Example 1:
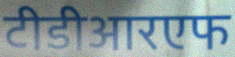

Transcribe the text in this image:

टीडीआरएफ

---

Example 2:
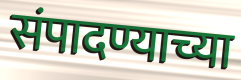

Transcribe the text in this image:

संपादण्याच्या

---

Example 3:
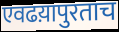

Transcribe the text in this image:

एवढय़ापुरताच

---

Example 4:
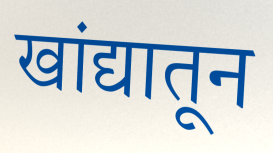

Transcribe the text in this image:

खांद्यातून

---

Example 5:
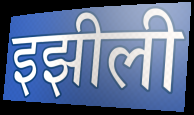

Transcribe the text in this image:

इझीली